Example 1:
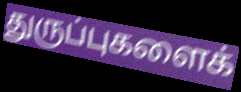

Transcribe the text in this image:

துருப்புகளைக்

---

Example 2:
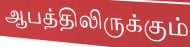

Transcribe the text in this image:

ஆபத்திலிருக்கும்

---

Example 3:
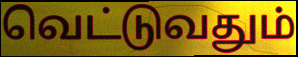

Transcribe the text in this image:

வெட்டுவதும்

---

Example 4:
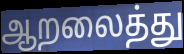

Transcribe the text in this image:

ஆறலைத்து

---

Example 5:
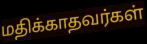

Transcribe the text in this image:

மதிக்காதவர்கள்